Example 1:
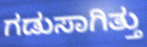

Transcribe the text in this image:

ಗಡುಸಾಗಿತ್ತು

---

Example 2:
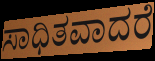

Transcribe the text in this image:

ಸಾಧಿತವಾದರೆ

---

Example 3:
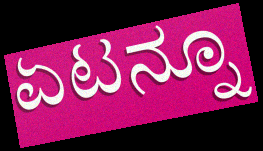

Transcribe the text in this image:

ಏಟನ್ನೂ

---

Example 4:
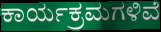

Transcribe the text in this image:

ಕಾರ್ಯಕ್ರಮಗಳಿವೆ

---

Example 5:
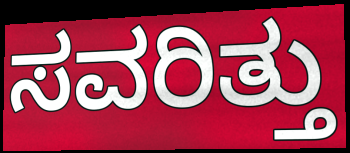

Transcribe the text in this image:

ಸವರಿತ್ತು